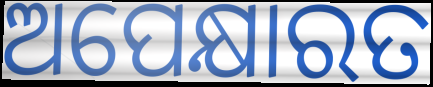
ଅପେକ୍ଷାରତ